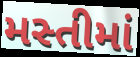
મસ્તીમાં